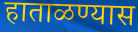
हाताळण्यास